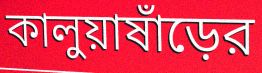
কালুয়াষাঁড়ের